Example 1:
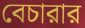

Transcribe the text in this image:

বেচারার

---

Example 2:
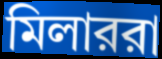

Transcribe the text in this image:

মিলাররা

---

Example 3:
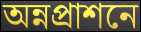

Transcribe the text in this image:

অন্নপ্রাশনে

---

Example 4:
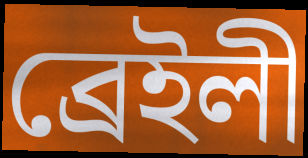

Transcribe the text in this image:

ব্রেইলী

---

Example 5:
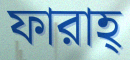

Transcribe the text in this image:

ফারাহ্